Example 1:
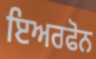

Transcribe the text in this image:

ਇਅਰਫੋਨ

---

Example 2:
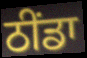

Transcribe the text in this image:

ਠੀਂਡਾ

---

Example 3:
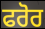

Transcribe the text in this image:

ਫਰੋਰ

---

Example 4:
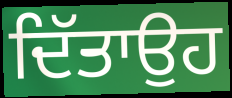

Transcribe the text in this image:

ਦਿੱਤਾਉਹ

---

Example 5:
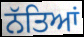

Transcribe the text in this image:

ਨੱਤਿਆਂ